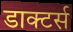
डाक्टर्स